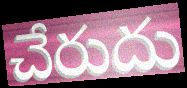
చేరుదు